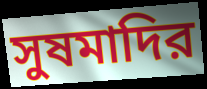
সুষমাদির